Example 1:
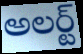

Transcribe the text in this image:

అలర్ట్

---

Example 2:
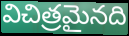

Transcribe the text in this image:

విచిత్రమైనది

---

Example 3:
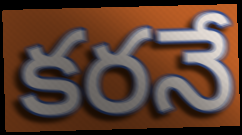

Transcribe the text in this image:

కరనే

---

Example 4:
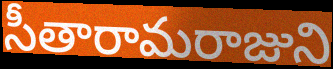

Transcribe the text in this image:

సీతారామరాజుని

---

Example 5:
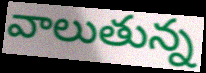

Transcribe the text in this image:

వాలుతున్న